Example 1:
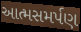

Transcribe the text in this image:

આત્મસમર્પણ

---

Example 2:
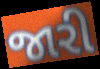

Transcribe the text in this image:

જારી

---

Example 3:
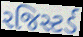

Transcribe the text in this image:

રજિસ્ટર્ડ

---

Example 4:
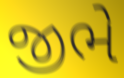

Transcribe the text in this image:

જીભે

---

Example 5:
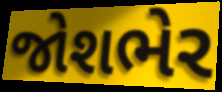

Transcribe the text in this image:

જોશભેર